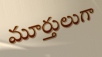
మూర్తులుగా